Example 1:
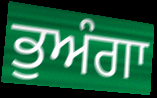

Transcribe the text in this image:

ਭੁਅੰਗਾ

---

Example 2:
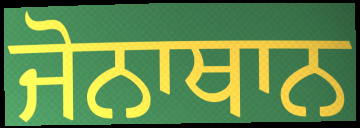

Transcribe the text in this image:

ਜੋਨਾਥਾਨ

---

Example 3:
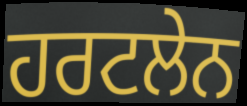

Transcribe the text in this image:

ਹਰਟਲੇਨ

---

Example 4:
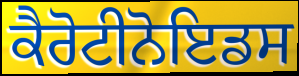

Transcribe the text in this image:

ਕੈਰੋਟੀਨੋਇਡਸ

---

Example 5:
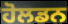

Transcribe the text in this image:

ਹੋਲਡਨ